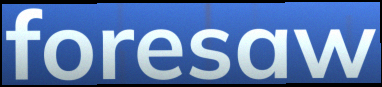
foresaw